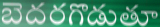
బెదరగొడుతూ